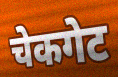
चेकगेट